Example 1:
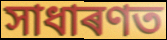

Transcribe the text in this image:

সাধাৰণত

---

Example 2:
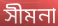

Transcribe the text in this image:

সীমনা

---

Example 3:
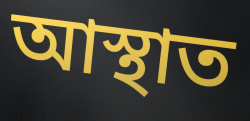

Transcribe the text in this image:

আস্থাত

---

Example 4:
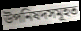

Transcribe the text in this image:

উপনিষদসমূহত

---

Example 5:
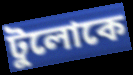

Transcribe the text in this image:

টুলোকে